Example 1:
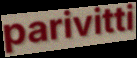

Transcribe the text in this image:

parivitti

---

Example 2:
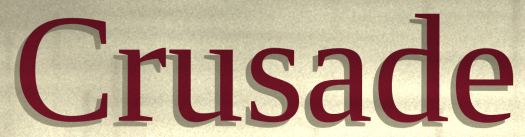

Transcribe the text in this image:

Crusade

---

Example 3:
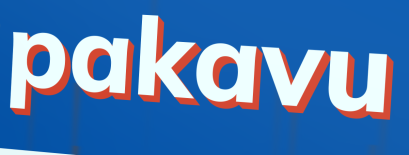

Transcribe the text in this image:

pakavu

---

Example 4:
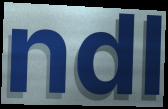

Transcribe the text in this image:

ndl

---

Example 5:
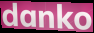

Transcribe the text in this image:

danko